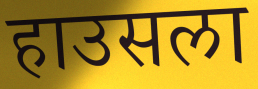
हाउसला